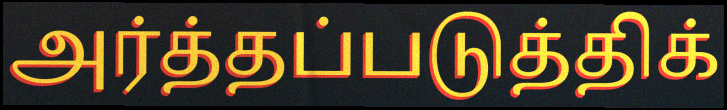
அர்த்தப்படுத்திக்